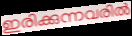
ഇരിക്കുന്നവരിൽ